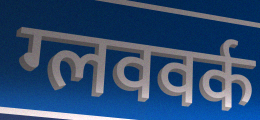
ग्लववर्क